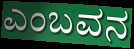
ಎಂಬವನ